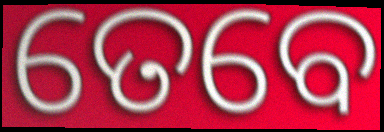
ତେବେ